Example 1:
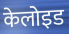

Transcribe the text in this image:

केलोइड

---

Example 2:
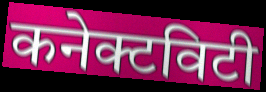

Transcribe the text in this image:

कनेक्टविटी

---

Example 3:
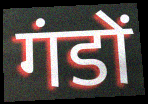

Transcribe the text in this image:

गंडों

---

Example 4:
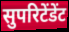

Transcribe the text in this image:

सुपरिटेंडेंट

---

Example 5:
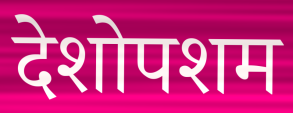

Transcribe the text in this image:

देशोपशम